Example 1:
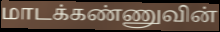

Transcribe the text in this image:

மாடக்கண்ணுவின்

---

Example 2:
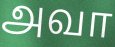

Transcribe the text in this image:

அவா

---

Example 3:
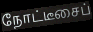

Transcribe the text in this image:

நோட்டீசைப்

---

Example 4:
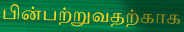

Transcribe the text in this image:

பின்பற்றுவதற்காக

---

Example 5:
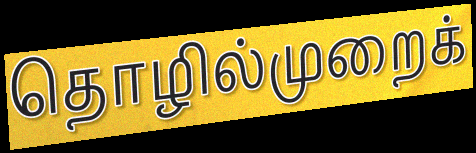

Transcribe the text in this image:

தொழில்முறைக்